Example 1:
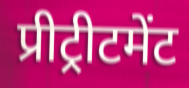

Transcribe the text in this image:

प्रीट्रीटमेंट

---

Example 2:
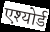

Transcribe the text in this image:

एश्योर्ड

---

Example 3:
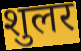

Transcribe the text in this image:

शुलर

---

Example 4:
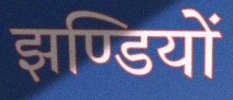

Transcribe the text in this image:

झण्डियों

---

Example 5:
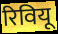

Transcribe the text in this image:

रिवियू